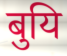
बुयि